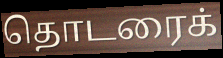
தொடரைக்